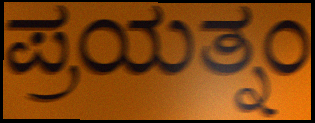
ಪ್ರಯತ್ನಂ